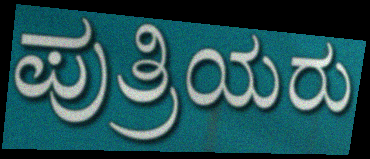
ಪುತ್ರಿಯರು